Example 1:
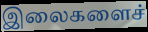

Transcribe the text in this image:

இலைகளைச்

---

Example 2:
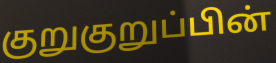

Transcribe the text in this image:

குறுகுறுப்பின்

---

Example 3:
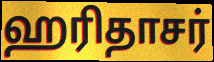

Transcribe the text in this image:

ஹரிதாசர்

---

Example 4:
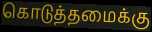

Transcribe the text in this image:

கொடுத்தமைக்கு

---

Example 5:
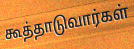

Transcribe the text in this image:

கூத்தாடுவார்கள்